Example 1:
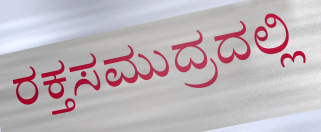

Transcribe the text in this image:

ರಕ್ತಸಮುದ್ರದಲ್ಲಿ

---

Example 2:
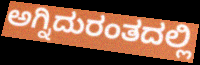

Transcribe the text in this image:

ಅಗ್ನಿದುರಂತದಲ್ಲಿ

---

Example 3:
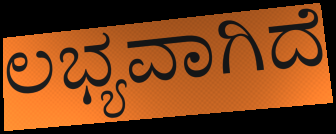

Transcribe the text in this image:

ಲಭ್ಯವಾಗಿದೆ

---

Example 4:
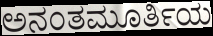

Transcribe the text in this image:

ಅನಂತಮೂರ್ತಿಯ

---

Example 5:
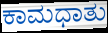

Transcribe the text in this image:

ಕಾಮಧಾತು